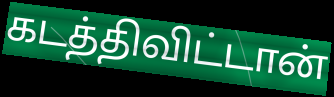
கடத்திவிட்டான்